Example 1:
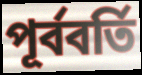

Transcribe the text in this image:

পূর্ববর্তি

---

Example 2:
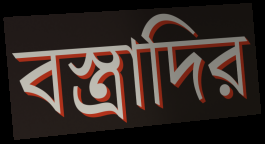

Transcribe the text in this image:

বস্ত্রাদির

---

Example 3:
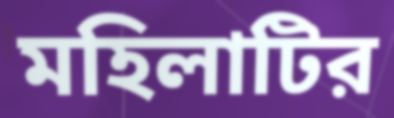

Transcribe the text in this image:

মহিলাটির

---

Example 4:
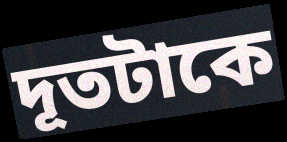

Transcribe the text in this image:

দূতটাকে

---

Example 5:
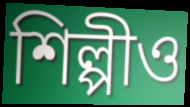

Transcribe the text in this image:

শিল্পীও